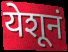
येशूनं